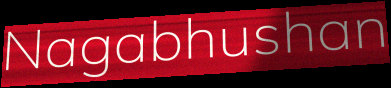
Nagabhushan